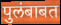
पुलंबाबत